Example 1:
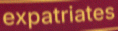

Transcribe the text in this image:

expatriates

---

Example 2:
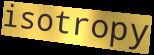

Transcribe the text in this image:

isotropy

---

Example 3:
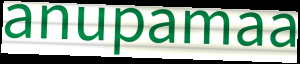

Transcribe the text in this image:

anupamaa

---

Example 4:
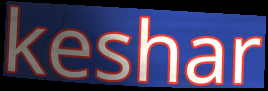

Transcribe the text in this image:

keshar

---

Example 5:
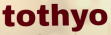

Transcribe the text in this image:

tothyo